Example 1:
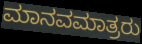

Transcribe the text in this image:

ಮಾನವಮಾತ್ರರು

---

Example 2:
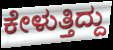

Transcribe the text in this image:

ಕೇಳುತ್ತಿದ್ದು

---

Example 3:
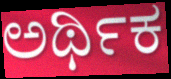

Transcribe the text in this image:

ಅರ್ಥಿಕ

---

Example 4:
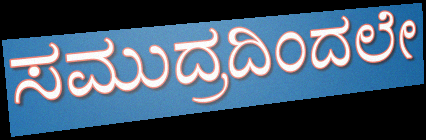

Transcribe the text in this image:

ಸಮುದ್ರದಿಂದಲೇ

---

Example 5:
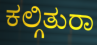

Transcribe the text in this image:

ಕಲ್ಗಿತುರಾ